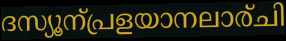
ദസ്യൂന്പ്രളയാനലാര്ചി